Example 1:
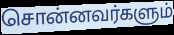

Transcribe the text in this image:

சொன்னவர்களும்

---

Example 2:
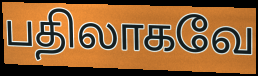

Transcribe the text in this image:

பதிலாகவே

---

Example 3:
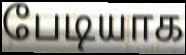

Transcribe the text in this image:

பேடியாக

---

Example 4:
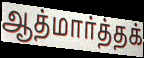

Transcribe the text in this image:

ஆத்மார்த்தக்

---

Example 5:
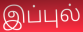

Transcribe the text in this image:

இப்புல்